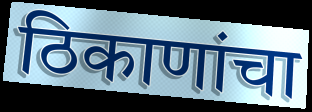
ठिकाणांचा